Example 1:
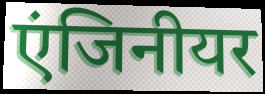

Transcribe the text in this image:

एंजिनीयर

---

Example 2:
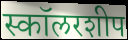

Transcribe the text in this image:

स्कॉलरशीप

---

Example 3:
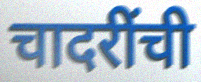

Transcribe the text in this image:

चादरींची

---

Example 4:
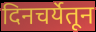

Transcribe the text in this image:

दिनचर्येतून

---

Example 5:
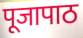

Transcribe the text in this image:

पूजापाठ